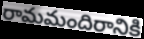
రామమందిరానికి